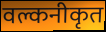
वल्कनीकृत